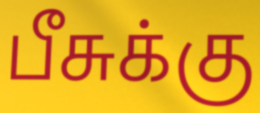
பீசுக்கு